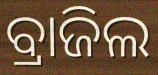
ବ୍ରାଜିଲ